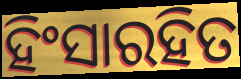
ହିଂସାରହିତ